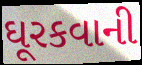
ઘૂરકવાની